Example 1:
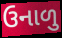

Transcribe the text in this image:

ઉનાળુ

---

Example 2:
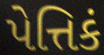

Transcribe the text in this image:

પેત્તિકં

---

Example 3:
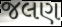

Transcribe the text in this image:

જલણ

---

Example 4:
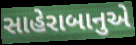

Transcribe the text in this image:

સાહેરાબાનુએ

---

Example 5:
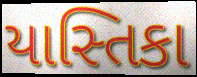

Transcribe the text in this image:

યાસ્તિકા